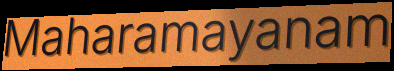
Maharamayanam